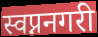
स्वप्ननगरी